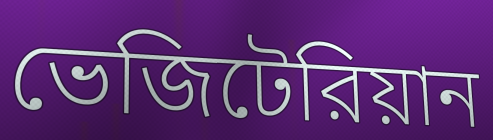
ভেজিটেরিয়ান